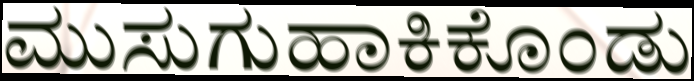
ಮುಸುಗುಹಾಕಿಕೊಂಡು